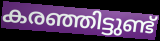
കരഞ്ഞിട്ടുണ്ട്